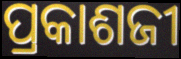
ପ୍ରକାଶଜୀ